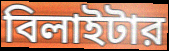
বিলাইটার